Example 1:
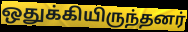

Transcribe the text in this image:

ஒதுக்கியிருந்தனர்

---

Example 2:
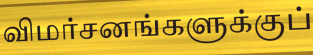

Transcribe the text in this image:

விமர்சனங்களுக்குப்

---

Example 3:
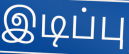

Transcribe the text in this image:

இடிப்பு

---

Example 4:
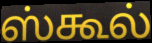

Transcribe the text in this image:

ஸ்கூல்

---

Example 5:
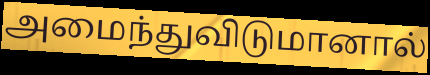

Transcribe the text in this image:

அமைந்துவிடுமானால்